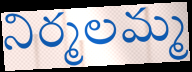
నిర్మలమ్మ